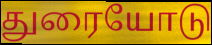
துரையோடு